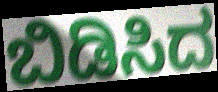
ಬಿಡಿಸಿದ